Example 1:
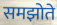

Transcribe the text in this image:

समझोते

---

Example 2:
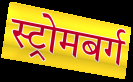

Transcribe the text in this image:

स्ट्रोमबर्ग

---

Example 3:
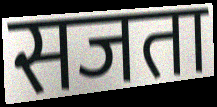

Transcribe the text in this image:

सजता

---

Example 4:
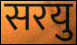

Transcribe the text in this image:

सरयु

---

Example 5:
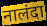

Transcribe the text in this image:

नालंदा